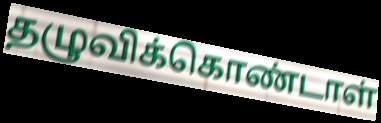
தழுவிக்கொண்டாள்